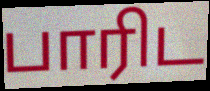
பாரிட